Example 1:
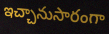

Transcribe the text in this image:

ఇచ్చానుసారంగా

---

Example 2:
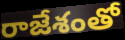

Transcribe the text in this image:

రాజేశంతో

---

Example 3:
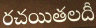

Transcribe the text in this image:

రచయితలదీ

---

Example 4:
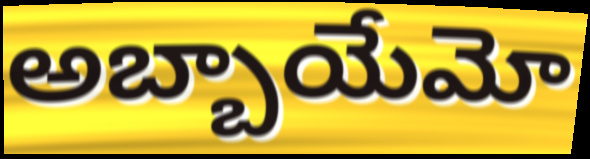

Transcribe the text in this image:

అబ్బాయేమో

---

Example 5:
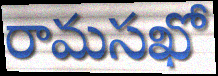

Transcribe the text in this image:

రామసఖో